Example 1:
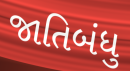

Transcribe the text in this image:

જાતિબંધુ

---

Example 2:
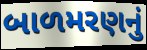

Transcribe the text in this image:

બાળમરણનું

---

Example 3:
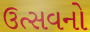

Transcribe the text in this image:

ઉત્સવનો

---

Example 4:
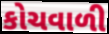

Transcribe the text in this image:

કોચવાળી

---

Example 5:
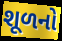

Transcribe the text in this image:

શૂળનો